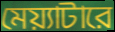
মেয়্যাটারে